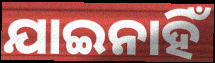
ଯାଇନାହିଁ